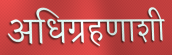
अधिग्रहणाशी